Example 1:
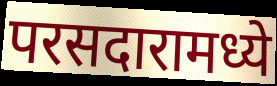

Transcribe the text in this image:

परसदारामध्ये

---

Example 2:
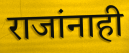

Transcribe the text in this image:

राजांनाही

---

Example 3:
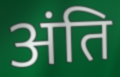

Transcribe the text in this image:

अंति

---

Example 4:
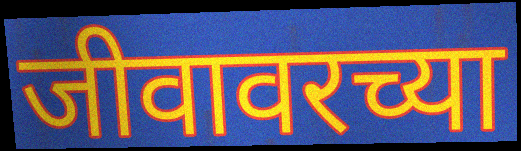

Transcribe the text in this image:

जीवावरच्या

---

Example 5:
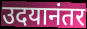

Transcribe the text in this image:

उदयानंतर